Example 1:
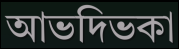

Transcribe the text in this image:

আভদিভকা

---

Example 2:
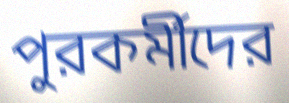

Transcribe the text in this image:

পুরকর্মীদের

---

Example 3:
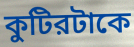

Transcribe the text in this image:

কুটিরটাকে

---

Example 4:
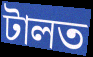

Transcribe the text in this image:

টালত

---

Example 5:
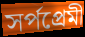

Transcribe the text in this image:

সর্পপ্রেমী